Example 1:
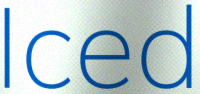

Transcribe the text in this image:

Iced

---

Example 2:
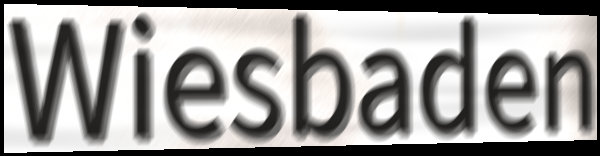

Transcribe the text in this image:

Wiesbaden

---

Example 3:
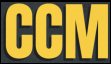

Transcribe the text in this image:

CCM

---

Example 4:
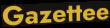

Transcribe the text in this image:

Gazettee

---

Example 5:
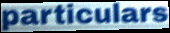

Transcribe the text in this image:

particulars